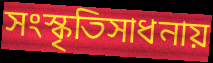
সংস্কৃতিসাধনায়